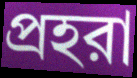
প্রহরা